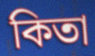
কিতা